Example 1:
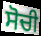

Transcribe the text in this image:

ਸੋਚੀ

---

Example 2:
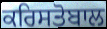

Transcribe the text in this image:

ਕਰਿਸਤੋਬਾਲ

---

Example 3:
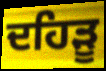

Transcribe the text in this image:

ਦਹਿੜੂ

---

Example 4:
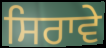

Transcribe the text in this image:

ਸਿਰਾਵੇ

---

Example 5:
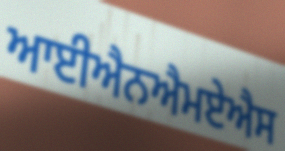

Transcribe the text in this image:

ਆਈਐਨਐਮਏਐਸ